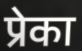
प्रेका